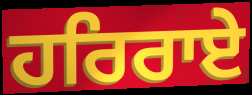
ਹਰਿਰਾਏ